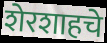
शेरशाहचे